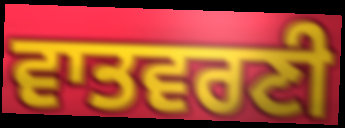
ਵਾਤਵਰਣੀ